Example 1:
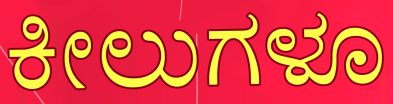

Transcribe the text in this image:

ಕೀಲುಗಳೂ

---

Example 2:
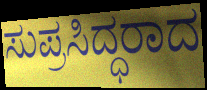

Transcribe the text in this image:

ಸುಪ್ರಸಿದ್ಧರಾದ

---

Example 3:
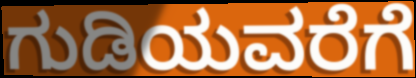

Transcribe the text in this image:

ಗುಡಿಯವರೆಗೆ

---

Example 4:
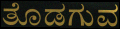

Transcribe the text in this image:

ತೊಡಗುವ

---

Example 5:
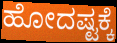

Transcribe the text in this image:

ಹೋದಷ್ಟಕ್ಕೆ